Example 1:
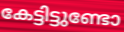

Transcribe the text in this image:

കേട്ടിട്ടുണ്ടോ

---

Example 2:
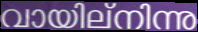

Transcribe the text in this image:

വായില്നിന്നു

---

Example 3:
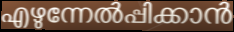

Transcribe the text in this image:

എഴുന്നേൽപ്പിക്കാൻ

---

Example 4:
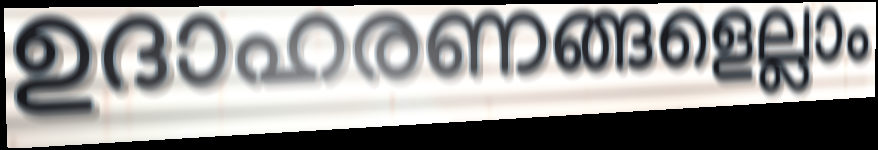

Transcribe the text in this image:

ഉദാഹരണങ്ങളെല്ലാം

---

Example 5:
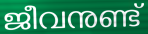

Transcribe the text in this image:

ജീവനുണ്ട്